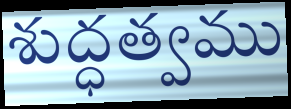
శుద్ధత్వము